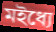
মইধ্যে